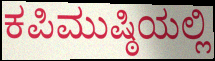
ಕಪಿಮುಷ್ಠಿಯಲ್ಲಿ